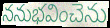
ననుభవించెను